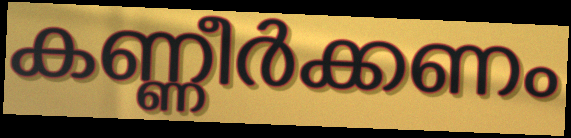
കണ്ണീർക്കണം